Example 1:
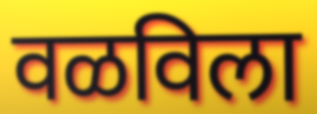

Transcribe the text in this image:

वळविला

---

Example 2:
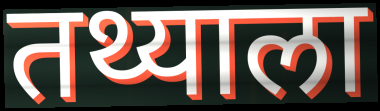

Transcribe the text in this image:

तथ्याला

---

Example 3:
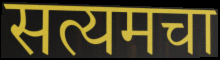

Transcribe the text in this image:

सत्यमचा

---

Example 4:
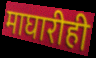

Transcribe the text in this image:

माघारीही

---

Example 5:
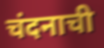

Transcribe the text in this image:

चंदनाची